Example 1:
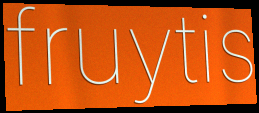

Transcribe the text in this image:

fruytis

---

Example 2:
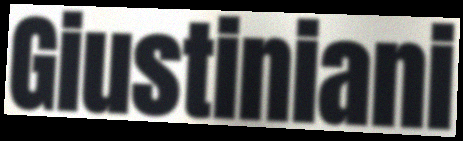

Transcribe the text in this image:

Giustiniani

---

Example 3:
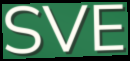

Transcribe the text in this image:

SVE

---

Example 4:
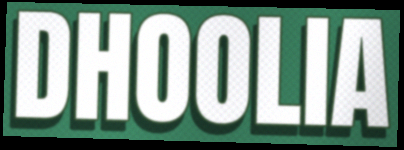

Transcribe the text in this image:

DHOOLIA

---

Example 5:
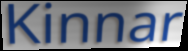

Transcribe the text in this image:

Kinnar